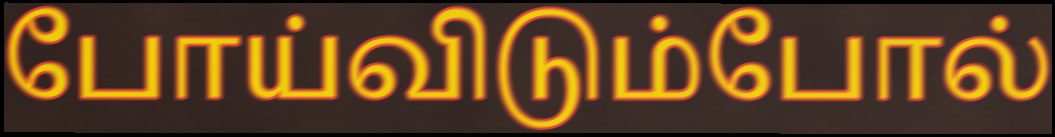
போய்விடும்போல்